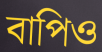
বাপিও